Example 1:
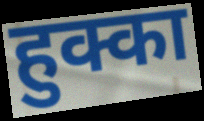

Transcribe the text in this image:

हुक्का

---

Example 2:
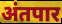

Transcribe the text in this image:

अंतपार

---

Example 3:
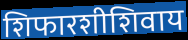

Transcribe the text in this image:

शिफारशीशिवाय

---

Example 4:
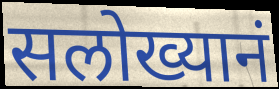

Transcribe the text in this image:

सलोख्यानं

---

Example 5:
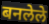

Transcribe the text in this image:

बनलेले